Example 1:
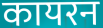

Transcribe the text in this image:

कायरन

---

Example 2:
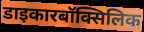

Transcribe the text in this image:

डाइकारबॉक्सिलिक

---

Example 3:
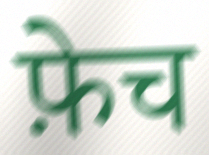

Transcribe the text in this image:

फ़ेच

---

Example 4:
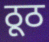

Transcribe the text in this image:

ठूठ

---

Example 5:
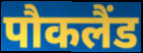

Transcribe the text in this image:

पौकलैंड